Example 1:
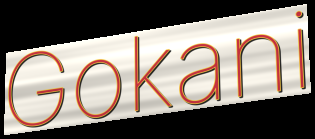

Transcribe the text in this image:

Gokani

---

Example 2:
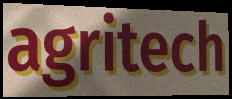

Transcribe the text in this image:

agritech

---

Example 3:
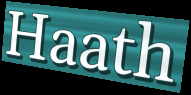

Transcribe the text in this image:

Haath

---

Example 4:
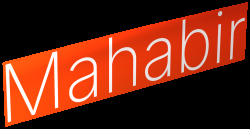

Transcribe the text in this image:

Mahabir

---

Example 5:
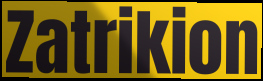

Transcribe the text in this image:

Zatrikion